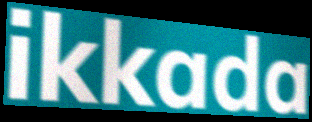
ikkada